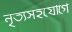
নৃত্যসহযোগে